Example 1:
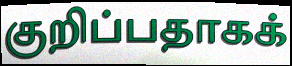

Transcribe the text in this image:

குறிப்பதாகக்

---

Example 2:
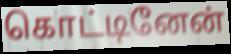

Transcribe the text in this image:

கொட்டினேன்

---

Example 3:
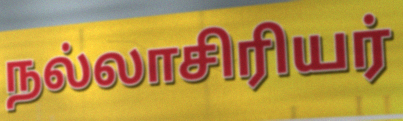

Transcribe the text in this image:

நல்லாசிரியர்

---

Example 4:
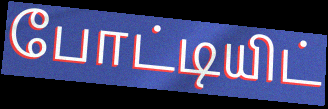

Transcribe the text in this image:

போட்டியிட்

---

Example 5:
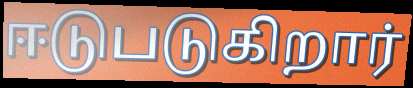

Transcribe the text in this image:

ஈடுபடுகிறார்